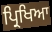
ਪ੍ਰਿਖਿਆ